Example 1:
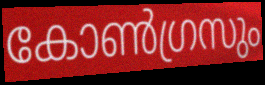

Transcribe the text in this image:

കോൺഗ്രസും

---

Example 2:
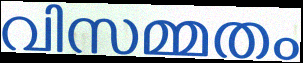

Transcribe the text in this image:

വിസമ്മതം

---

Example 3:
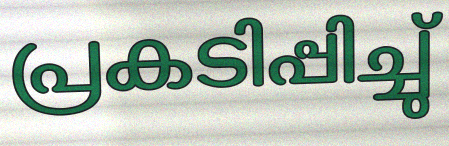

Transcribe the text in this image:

പ്രകടിപ്പിച്ചു്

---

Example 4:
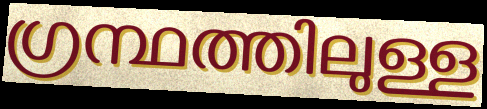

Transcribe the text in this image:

ഗ്രന്ഥത്തിലുള്ള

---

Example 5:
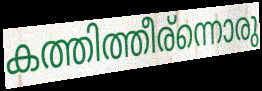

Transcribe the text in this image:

കത്തിത്തീര്ന്നൊരു